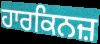
ਹਾਰਕਿਨਜ਼